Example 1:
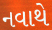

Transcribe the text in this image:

નવાથે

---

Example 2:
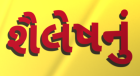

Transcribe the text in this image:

શૈલેષનું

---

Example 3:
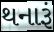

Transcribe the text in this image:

થનારૂં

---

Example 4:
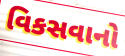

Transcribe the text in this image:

વિકસવાનો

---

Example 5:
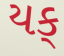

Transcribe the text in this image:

યક્